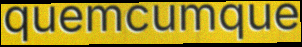
quemcumque